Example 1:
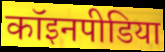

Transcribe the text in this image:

कॉइनपीडिया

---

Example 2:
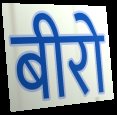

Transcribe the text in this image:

बीरो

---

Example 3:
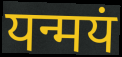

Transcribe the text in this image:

यन्मयं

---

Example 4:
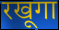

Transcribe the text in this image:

रखूगा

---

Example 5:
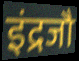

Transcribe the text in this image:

इंद्रजौ